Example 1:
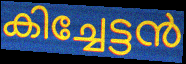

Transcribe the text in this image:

കിച്ചേട്ടൻ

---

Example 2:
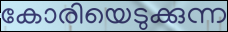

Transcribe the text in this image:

കോരിയെടുക്കുന്ന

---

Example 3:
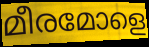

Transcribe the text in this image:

മീരമോളെ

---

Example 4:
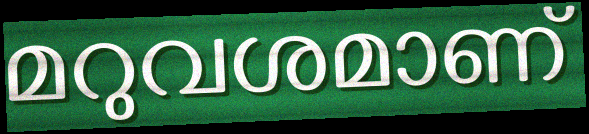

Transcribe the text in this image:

മറുവശമാണ്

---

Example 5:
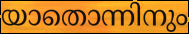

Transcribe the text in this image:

യാതൊന്നിനും